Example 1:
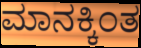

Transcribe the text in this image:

ಮಾನಕ್ಕಿಂತ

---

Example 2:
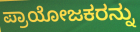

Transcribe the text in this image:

ಪ್ರಾಯೋಜಕರನ್ನು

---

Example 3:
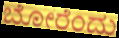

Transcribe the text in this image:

ಬೋರೆಂದು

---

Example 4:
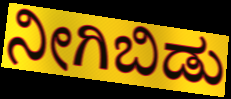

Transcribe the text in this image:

ನೀಗಿಬಿಡು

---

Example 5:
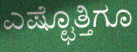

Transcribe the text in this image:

ಎಷ್ಟೊತ್ತಿಗೂ